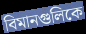
বিমানগুলিকে